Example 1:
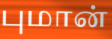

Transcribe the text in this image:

புமான்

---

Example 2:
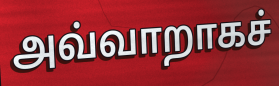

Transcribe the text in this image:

அவ்வாறாகச்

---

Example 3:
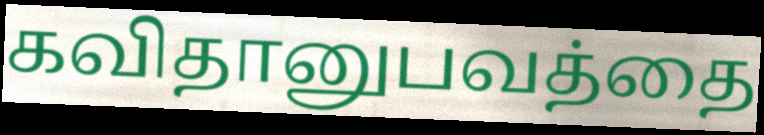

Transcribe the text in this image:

கவிதானுபவத்தை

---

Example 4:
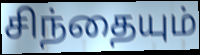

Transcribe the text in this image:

சிந்தையும்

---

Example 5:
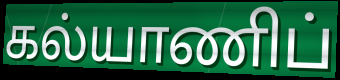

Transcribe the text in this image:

கல்யாணிப்